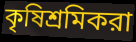
কৃষিশ্রমিকরা